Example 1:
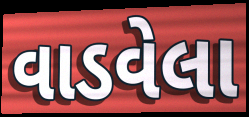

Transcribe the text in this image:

વાડવેલા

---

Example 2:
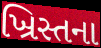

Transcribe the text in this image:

ખ્રિસ્તના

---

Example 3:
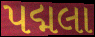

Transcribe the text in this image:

પદ્મલા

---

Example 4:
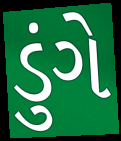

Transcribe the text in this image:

ડુંગે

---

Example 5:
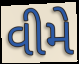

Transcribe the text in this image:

વીમે